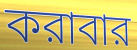
করাবার